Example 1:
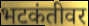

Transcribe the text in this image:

भटकंतीवर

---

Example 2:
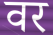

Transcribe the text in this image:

वर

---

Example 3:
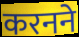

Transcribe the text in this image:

करनने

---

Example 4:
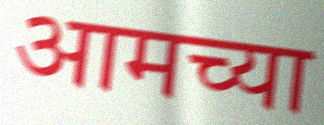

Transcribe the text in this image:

आमच्या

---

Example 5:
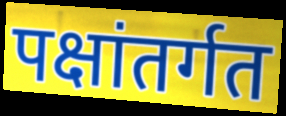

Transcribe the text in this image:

पक्षांतर्गत